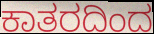
ಕಾತರದಿಂದ